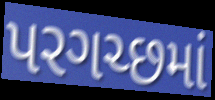
પરગચ્છમાં